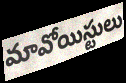
మావోయిస్టులు